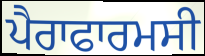
ਪੈਰਾਫਾਰਮਸੀ